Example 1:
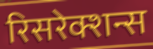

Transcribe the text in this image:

रिसरेक्शन्स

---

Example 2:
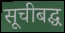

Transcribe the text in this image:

सूचीबद्घ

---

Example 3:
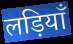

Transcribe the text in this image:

लड़ियाँ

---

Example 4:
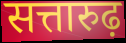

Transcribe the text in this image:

सत्तारुढ़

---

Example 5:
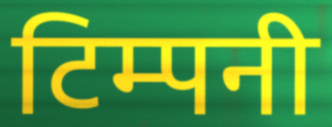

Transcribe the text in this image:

टिम्पनी